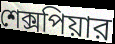
শেক্সপিয়ার